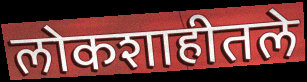
लोकशाहीतले